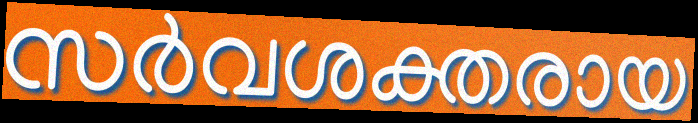
സർവശക്തരായ